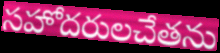
సహోదరులచేతను